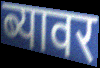
ब्यावर